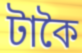
টাকৈ